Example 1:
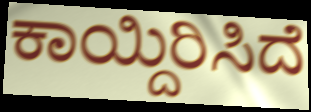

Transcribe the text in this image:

ಕಾಯ್ದಿರಿಸಿದೆ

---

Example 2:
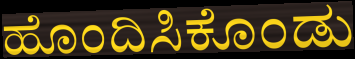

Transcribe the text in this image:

ಹೊಂದಿಸಿಕೊಂಡು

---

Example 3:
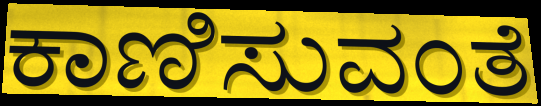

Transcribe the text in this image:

ಕಾಣಿಸುವಂತೆ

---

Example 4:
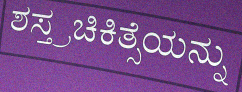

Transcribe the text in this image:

ಶಸ್ತ್ರಚಿಕಿತ್ಸೆಯನ್ನು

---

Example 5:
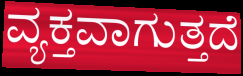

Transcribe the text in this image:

ವ್ಯಕ್ತವಾಗುತ್ತದೆ